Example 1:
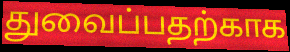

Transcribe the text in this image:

துவைப்பதற்காக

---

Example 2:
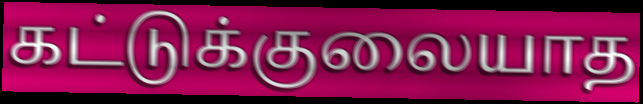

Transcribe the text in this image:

கட்டுக்குலையாத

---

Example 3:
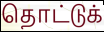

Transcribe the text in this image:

தொட்டுக்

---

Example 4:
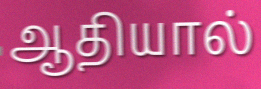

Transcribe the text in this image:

ஆதியால்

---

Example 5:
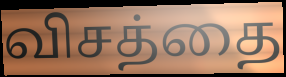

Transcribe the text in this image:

விசத்தை